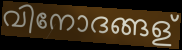
വിനോദങ്ങള്